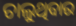
ଚାଲୁଥିବାର